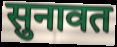
सुनावत